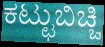
ಕಟ್ಟುಬಿಚ್ಚಿ